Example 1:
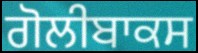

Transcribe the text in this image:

ਗੋਲੀਬਾਕਸ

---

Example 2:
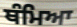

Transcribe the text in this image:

ਥੰਮਿਆ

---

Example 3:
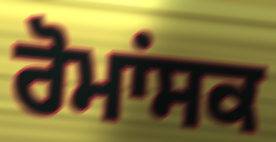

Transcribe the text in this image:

ਰੋਮਾਂਸਕ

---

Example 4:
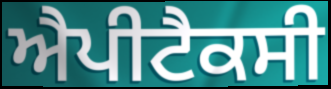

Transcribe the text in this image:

ਐਪੀਟੈਕਸੀ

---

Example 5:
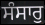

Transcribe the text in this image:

ਸੰਸਾਰੁ